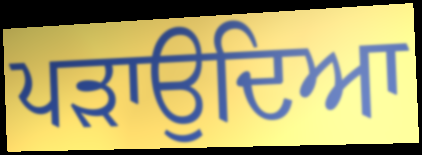
ਪੜਾਉਦਿਆ